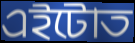
এইটোত